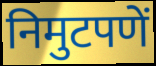
निमुटपणें